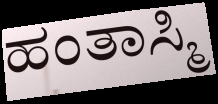
ಹಂತಾಸ್ಮಿ